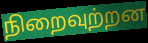
நிறைவுற்றன